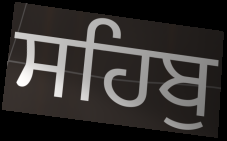
ਸਹਿਬੁ